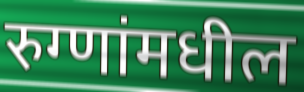
रुग्णांमधील